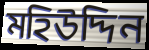
মহিউদ্দিন